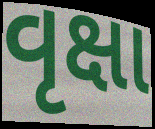
વૃક્ષા